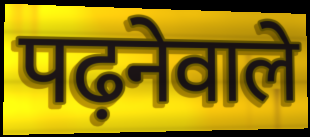
पढ़नेवाले